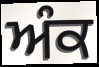
ਅੰਕ